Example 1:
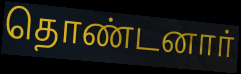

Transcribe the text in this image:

தொண்டனார்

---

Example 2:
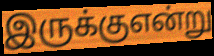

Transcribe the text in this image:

இருக்குஎன்று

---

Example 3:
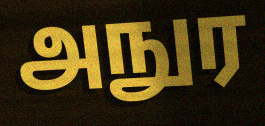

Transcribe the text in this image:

அநுர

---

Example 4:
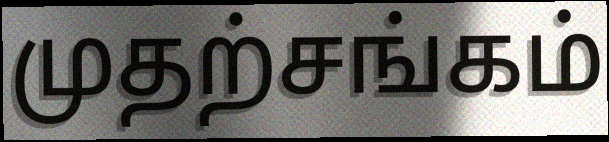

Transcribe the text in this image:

முதற்சங்கம்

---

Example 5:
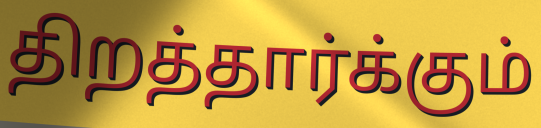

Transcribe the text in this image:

திறத்தார்க்கும்